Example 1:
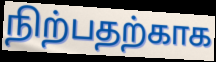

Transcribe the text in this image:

நிற்பதற்காக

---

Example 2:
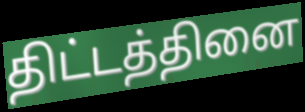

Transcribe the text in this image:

திட்டத்தினை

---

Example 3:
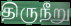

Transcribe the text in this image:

திருநீறு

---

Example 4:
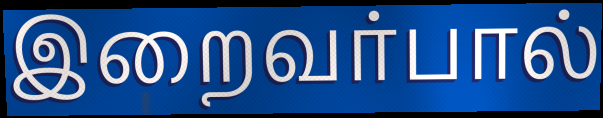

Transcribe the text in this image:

இறைவர்பால்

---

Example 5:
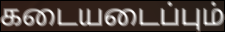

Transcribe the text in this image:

கடையடைப்பும்